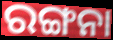
ରଙ୍ଗନା